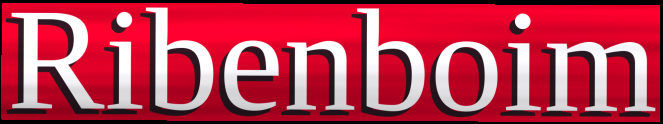
Ribenboim